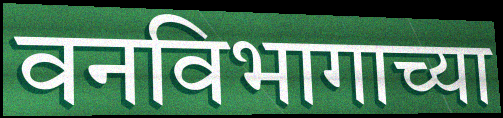
वनविभागाच्या